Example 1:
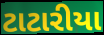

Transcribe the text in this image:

ટાટારીયા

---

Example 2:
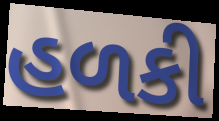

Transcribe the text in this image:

હળકી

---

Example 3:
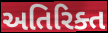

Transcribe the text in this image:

અતિરિક્ત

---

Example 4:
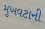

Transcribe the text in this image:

મુખવટાની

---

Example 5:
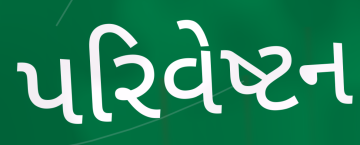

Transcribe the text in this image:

પરિવેષ્ટન